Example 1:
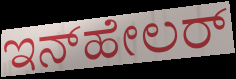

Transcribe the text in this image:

ಇನ್‌ಹೇಲರ್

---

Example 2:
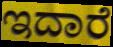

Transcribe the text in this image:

ಇದಾರೆ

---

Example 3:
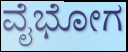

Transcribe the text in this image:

ವೈಭೋಗ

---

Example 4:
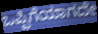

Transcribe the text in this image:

ಒಪ್ಪಿಗೆಯಾಗದೇ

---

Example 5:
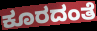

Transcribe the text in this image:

ಕೂರದಂತೆ